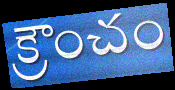
క్రౌంచం